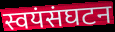
स्वयंसंघटन